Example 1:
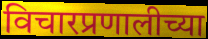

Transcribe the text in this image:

विचारप्रणालीच्या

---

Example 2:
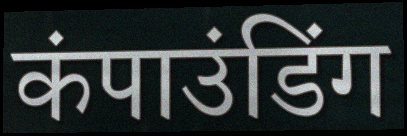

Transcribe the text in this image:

कंपाउंडिंग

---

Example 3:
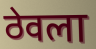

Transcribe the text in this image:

ठेवला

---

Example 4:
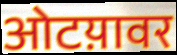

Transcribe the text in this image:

ओटय़ावर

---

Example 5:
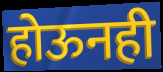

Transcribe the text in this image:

होऊनही